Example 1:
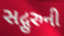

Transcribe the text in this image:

સદ્ગુરુની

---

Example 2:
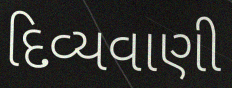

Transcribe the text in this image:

દિવ્યવાણી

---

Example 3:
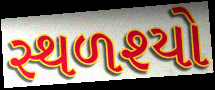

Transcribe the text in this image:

સ્થળશ્યો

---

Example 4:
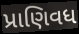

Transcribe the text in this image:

પ્રાણિવધ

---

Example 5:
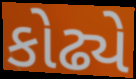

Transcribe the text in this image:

કોઢ્યે